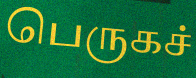
பெருகச்